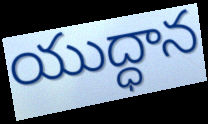
యుద్ధాన